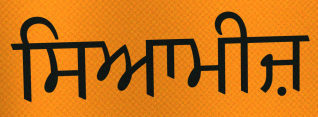
ਸਿਆਮੀਜ਼